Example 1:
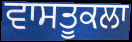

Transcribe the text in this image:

ਵਾਸਤੂਕਲਾ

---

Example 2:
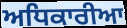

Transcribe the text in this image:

ਅਧਿਕਾਰੀਆ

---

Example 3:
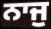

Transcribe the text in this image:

ਨਾਜੁ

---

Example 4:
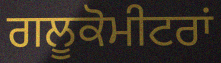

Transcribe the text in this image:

ਗਲੂਕੋਮੀਟਰਾਂ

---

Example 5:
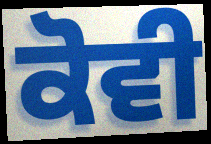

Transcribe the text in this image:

ਕੋਵੀ